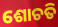
ଶୋଚତି